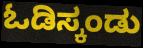
ಓಡಿಸ್ಕಂಡು